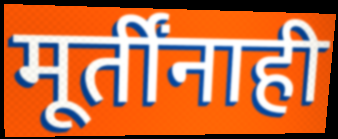
मूर्तींनाही